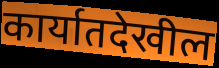
कार्यातदेखील